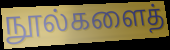
நூல்களைத்